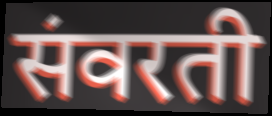
संवरती